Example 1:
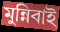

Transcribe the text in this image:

মুন্নিবাই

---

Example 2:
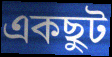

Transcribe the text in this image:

একছুট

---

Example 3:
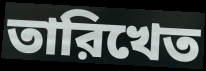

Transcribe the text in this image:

তারিখেত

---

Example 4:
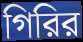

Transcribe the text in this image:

গিরির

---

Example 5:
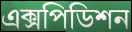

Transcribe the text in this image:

এক্সপিডিশন